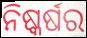
ନିଷ୍କର୍ଷର